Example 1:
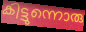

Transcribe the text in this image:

കിട്ടുന്നൊരു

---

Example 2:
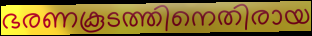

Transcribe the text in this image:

ഭരണകൂടത്തിനെതിരായ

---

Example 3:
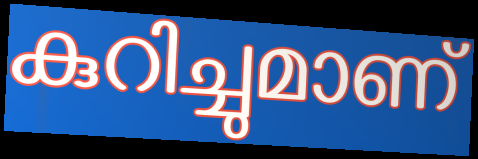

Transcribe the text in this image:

കുറിച്ചുമാണ്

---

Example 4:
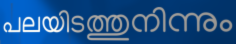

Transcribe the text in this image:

പലയിടത്തുനിന്നും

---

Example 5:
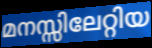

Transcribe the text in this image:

മനസ്സിലേറ്റിയ